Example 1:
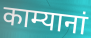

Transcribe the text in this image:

काम्यानां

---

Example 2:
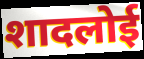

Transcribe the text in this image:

शादलोई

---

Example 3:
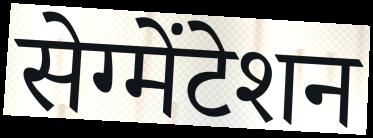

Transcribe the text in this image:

सेग्मेंटेशन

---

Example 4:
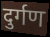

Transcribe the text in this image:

दुर्गण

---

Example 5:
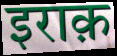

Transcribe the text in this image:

इराक़